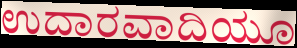
ಉದಾರವಾದಿಯೂ